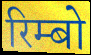
रिम्बो